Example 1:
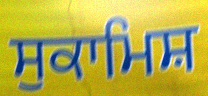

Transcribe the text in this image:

ਸੁਕਾਮਿਸ਼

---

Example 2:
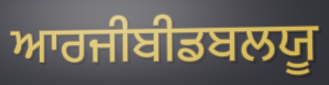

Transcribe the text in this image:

ਆਰਜੀਬੀਡਬਲਯੂ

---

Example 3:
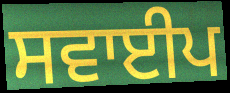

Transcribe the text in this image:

ਸਵਾਈਪ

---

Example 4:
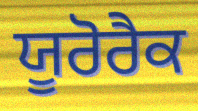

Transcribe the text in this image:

ਯੂਰੋਰੈਕ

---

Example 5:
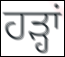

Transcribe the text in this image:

ਹੜ੍ਹਾਂ